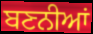
ਬਣਨੀਆਂ